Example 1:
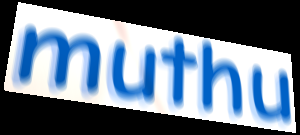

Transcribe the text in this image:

muthu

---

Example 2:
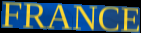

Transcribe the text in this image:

FRANCE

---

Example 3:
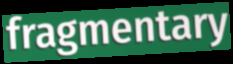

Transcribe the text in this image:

fragmentary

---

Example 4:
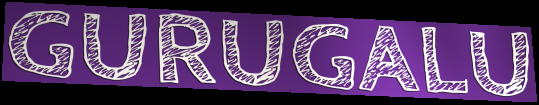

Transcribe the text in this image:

GURUGALU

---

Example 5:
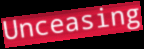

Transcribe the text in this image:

Unceasing